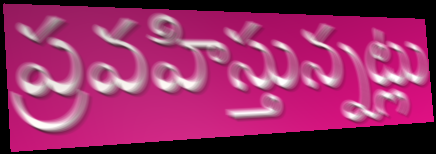
ప్రవహిస్తున్నట్లు